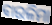
ବାଉଳିମା